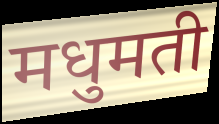
मधुमती